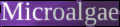
Microalgae